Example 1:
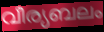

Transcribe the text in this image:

വീര്യബലം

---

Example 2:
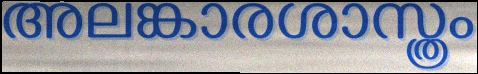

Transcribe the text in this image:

അലങ്കാരശാസ്ത്രം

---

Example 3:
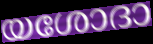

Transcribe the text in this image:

യശോദാ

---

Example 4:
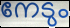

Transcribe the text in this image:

നേടും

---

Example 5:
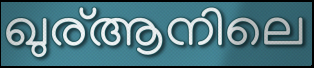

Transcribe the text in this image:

ഖുര്ആനിലെ